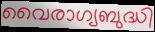
വൈരാഗ്യബുദ്ധി